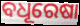
ବଧୂରେଷା